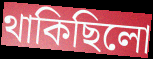
থাকিছিলো